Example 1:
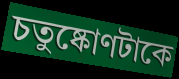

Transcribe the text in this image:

চতুষ্কোণটাকে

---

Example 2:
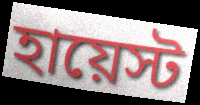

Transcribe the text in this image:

হায়েস্ট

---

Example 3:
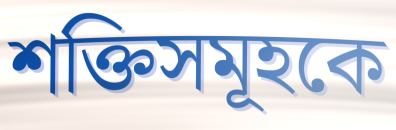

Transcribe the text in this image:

শক্তিসমূহকে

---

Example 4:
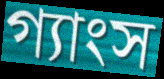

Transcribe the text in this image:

গ্যাংস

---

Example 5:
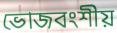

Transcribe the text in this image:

ভোজবংশীয়